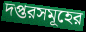
দপ্তরসমূহের